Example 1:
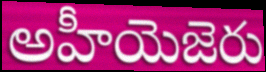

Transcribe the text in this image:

అహీయెజెరు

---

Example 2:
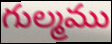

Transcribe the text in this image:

గుల్మము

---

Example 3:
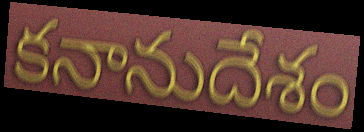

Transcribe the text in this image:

కనానుదేశం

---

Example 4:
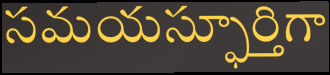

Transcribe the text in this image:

సమయస్ఫూర్తిగా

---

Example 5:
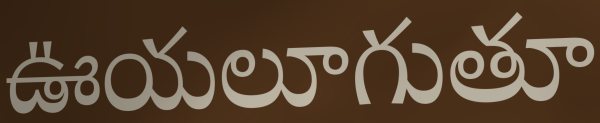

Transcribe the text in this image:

ఊయలూగుతూ